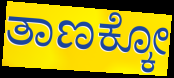
ತಾಣಕ್ಕೋ